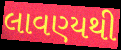
લાવણ્યથી